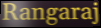
Rangaraj